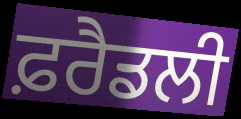
ਫ਼ਰੈਡਲੀ